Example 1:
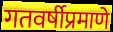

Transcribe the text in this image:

गतवर्षीप्रमाणे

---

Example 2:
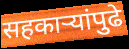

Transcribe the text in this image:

सहकाऱ्यांपुढे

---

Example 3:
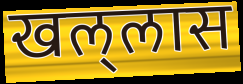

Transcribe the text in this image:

खल्लास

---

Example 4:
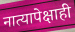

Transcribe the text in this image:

नात्यापेक्षाही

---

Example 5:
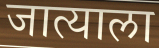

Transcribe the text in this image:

जात्याला